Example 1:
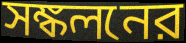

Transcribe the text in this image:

সঙ্কলনের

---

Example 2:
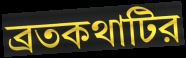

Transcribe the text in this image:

ব্রতকথাটির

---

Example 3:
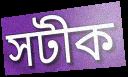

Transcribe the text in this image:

সটীক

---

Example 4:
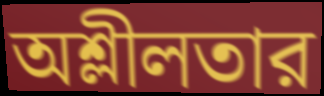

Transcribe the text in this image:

অশ্লীলতার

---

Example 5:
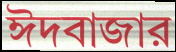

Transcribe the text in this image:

ঈদবাজার